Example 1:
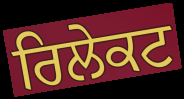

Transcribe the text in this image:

ਰਿਲੇਕਟ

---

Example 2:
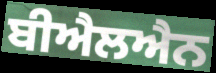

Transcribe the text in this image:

ਬੀਐਲਐਨ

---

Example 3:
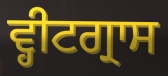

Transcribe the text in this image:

ਵ੍ਹੀਟਗ੍ਰਾਸ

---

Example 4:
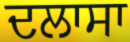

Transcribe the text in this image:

ਦਲਾਸਾ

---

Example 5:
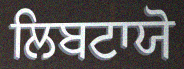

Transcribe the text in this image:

ਲਿਬਟਾਯੋ